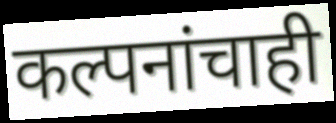
कल्पनांचाही